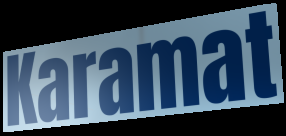
Karamat